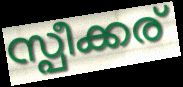
സ്പീക്കര്